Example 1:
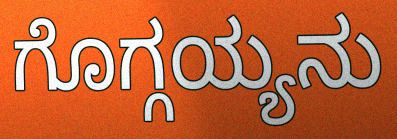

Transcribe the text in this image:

ಗೊಗ್ಗಯ್ಯನು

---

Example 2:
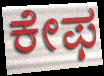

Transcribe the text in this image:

ಕೇಫ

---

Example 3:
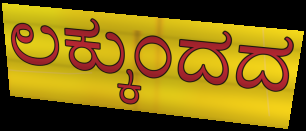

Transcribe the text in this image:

ಲಕ್ಕುಂದದ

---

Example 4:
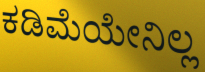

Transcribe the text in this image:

ಕಡಿಮೆಯೇನಿಲ್ಲ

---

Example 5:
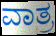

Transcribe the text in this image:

ವಾತ್ರ